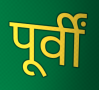
पूर्वीं